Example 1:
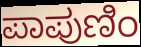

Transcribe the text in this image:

ಪಾಪುಣಿಂ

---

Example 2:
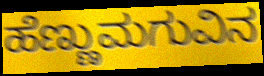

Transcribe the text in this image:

ಹೆಣ್ಣುಮಗುವಿನ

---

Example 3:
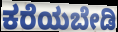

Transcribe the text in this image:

ಕರೆಯಬೇಡಿ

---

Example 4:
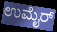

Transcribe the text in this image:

ಉಮೈರ್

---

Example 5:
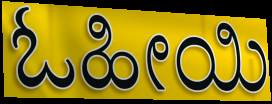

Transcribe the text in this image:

ಓಹೀಯಿ